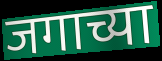
जगाच्या